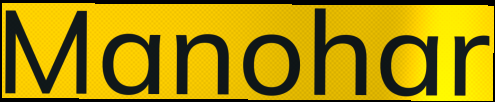
Manohar